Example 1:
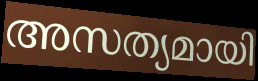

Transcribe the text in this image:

അസത്യമായി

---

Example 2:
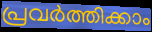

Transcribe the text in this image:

പ്രവർത്തിക്കാം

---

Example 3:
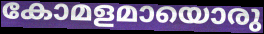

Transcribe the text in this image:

കോമളമായൊരു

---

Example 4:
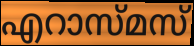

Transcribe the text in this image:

എറാസ്മസ്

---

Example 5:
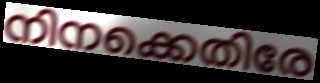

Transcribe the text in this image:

നിനക്കെതിരേ